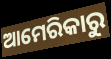
ଆମେରିକାରୁ